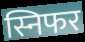
स्निफर